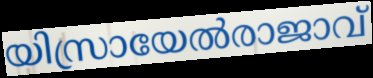
യിസ്രായേൽരാജാവ്